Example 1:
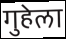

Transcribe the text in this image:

गुहेला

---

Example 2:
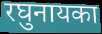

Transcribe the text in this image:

रघुनायका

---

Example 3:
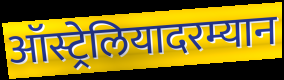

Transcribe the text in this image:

ऑस्ट्रेलियादरम्यान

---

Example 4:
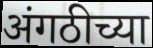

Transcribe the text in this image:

अंगठीच्या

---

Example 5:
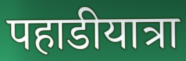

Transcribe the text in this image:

पहाडीयात्रा